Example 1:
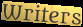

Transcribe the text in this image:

Writers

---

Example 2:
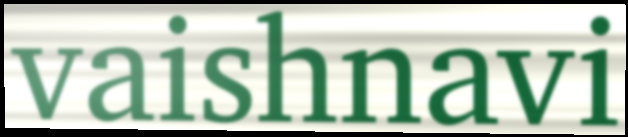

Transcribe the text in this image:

vaishnavi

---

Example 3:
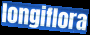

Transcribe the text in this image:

longiflora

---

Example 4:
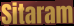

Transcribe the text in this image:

Sitaram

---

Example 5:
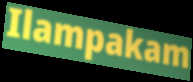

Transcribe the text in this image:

Ilampakam